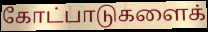
கோட்பாடுகளைக்